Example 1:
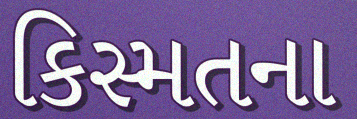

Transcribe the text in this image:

કિસ્મતના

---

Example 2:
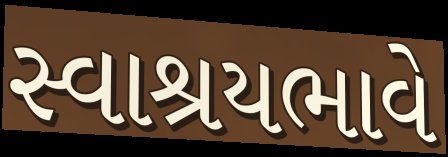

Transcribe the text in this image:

સ્વાશ્રયભાવે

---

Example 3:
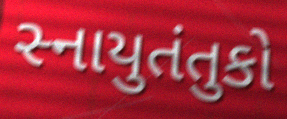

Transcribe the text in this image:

સ્નાયુતંતુકો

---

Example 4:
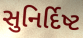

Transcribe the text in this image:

સુનિર્દિષ્ટ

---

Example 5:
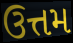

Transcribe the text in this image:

ઉત્તમ